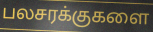
பலசரக்குகளை